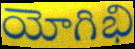
యోగిభి